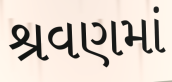
શ્રવણમાં